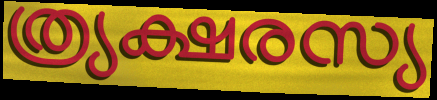
ത്ര്യക്ഷരസ്യ